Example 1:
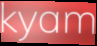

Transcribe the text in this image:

kyam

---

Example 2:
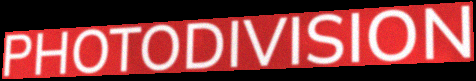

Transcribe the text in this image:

PHOTODIVISION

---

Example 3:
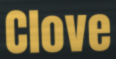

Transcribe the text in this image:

Clove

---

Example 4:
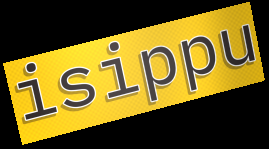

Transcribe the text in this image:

isippu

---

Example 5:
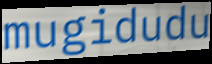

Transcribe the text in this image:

mugidudu